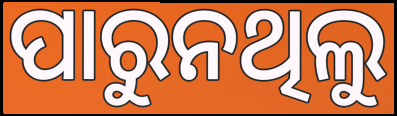
ପାରୁନଥିଲୁ